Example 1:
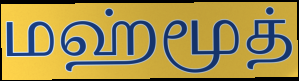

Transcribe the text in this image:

மஹ்மூத்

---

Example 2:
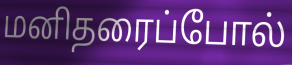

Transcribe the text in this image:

மனிதரைப்போல்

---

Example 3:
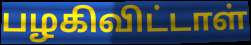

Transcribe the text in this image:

பழகிவிட்டாள்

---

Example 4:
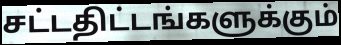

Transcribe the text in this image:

சட்டதிட்டங்களுக்கும்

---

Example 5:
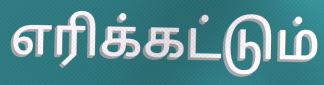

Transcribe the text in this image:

எரிக்கட்டும்